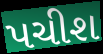
પચીશ